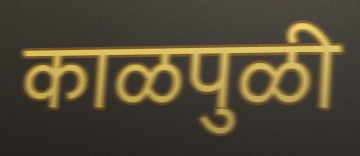
काळपुळी